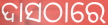
ଦାସଠାରେ